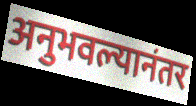
अनुभवल्यानंतर